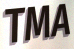
TMA